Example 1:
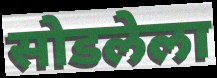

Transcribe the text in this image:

सोडलेला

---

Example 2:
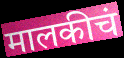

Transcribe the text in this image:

मालकीचं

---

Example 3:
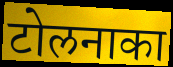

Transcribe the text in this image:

टोलनाका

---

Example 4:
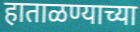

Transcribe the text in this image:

हाताळण्याच्या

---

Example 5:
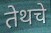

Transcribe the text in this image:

तेथचे